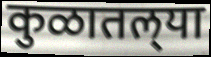
कुळातल्या